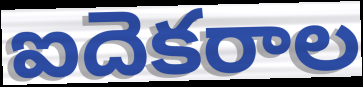
ఐదెకరాల